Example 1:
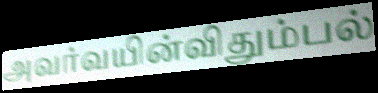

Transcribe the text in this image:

அவர்வயின்விதும்பல்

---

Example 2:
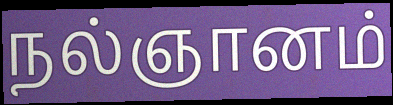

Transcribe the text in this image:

நல்ஞானம்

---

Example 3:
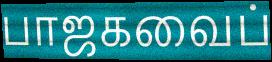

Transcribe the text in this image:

பாஜகவைப்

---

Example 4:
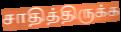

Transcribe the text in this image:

சாதித்திருக்க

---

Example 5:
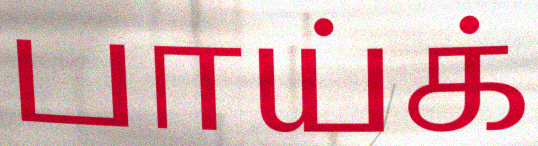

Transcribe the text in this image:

பாய்க்